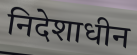
निदेशाधीन